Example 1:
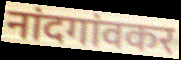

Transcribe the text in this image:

नांदगांवकर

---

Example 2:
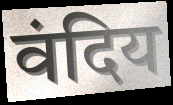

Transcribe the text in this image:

वंदिय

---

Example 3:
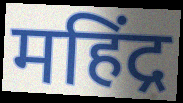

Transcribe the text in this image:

महिंद्र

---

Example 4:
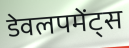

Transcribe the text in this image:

डेवलपमेंट्स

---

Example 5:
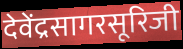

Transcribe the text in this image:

देवेंद्रसागरसूरिजी